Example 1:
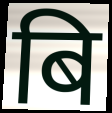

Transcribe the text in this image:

बि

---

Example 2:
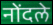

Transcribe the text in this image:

नोंदले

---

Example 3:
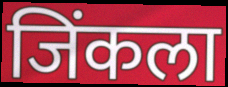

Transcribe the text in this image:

जिंकला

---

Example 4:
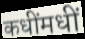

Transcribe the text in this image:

कधींमधीं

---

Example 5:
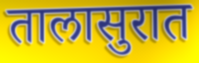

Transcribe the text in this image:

तालासुरात